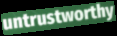
untrustworthy